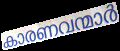
കാരണവന്മാർ